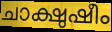
ചാക്ഷുഷീം